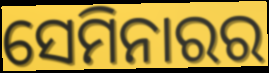
ସେମିନାରର